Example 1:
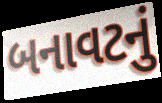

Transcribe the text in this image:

બનાવટનું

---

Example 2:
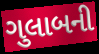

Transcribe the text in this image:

ગુલાબની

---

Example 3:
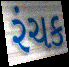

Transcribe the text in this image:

રંચક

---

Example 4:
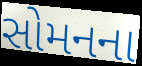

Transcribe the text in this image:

સોમનના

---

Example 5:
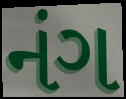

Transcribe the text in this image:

નંગ